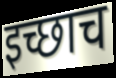
इच्छाच